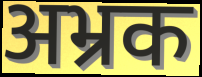
अभ्रक